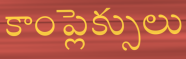
కాంప్లెక్సులు